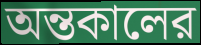
অন্তকালের